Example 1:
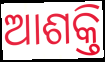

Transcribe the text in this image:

ଆଶକ୍ତି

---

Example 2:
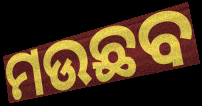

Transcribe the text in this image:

ମଉଛବ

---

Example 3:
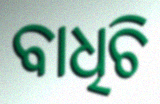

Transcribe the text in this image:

ବାଧିଚି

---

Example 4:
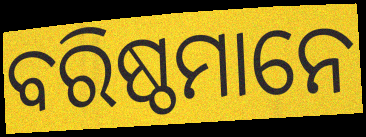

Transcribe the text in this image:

ବରିଷ୍ଠମାନେ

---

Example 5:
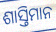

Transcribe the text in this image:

ଶାସ୍ତିମାନ